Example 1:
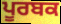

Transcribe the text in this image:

ਪੂਰਬਕ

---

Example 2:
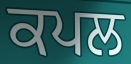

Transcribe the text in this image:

ਕਪਲ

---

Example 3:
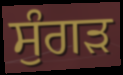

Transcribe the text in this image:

ਸੁੰਗੜ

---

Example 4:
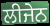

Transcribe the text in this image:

ਲੀਜੇਨ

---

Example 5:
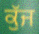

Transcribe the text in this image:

ਕੁੱਜ